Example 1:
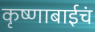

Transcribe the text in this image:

कृष्णाबाईचं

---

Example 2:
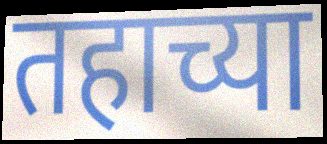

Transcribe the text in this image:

तहाच्या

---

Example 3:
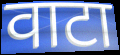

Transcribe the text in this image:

वाटा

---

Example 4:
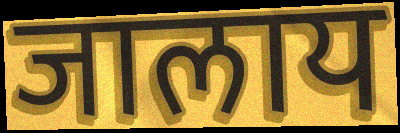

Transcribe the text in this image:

जालाय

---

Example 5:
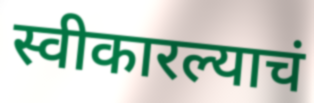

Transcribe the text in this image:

स्वीकारल्याचं